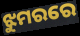
ଝୁମରରେ